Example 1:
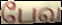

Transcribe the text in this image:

பேவ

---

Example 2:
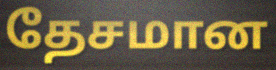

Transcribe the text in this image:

தேசமான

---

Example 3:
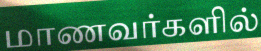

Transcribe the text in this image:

மாணவர்களில்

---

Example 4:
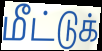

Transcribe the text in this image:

மீட்டுக்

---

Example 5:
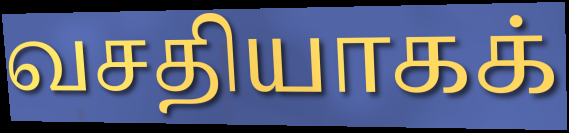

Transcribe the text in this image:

வசதியாகக்